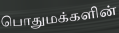
பொதுமக்களின்